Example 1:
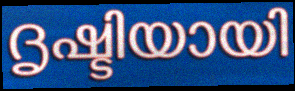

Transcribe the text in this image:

ദൃഷ്ടിയായി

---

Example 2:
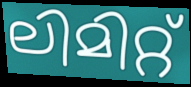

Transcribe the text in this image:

ലിമിറ്റ്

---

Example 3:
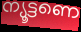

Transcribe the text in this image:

ന്യൂട്ടണെ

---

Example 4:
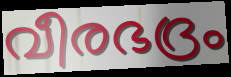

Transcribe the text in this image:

വീരഭദ്രം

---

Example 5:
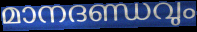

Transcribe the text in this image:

മാനദണ്ഡവും